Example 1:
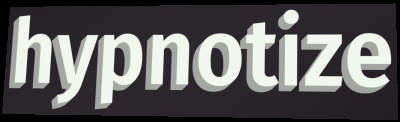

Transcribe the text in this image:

hypnotize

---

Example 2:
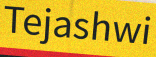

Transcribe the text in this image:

Tejashwi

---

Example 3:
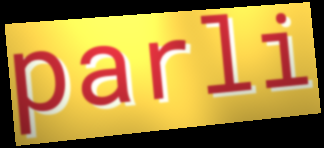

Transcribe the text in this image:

parli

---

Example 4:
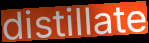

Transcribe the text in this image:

distillate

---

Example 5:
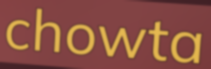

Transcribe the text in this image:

chowta